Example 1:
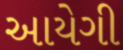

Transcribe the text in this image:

આયેગી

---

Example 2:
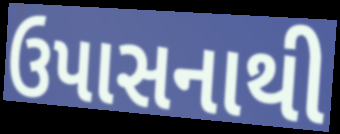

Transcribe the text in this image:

ઉપાસનાથી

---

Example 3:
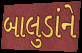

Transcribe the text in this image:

બાલુડાંને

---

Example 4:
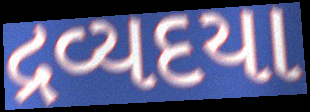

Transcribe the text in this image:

દ્રવ્યદયા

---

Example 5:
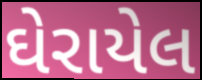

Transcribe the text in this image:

ઘેરાયેલ